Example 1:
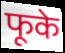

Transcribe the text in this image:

फूके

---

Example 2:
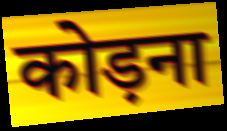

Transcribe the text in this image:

कोड़ना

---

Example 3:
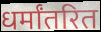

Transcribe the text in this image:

धर्मांतरित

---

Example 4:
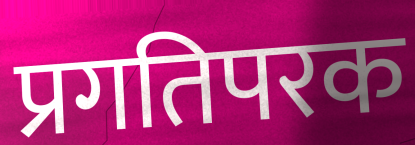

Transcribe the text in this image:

प्रगतिपरक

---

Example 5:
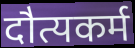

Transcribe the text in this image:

दौत्यकर्म